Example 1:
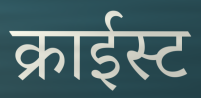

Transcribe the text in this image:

क्राईस्ट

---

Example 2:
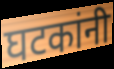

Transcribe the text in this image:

घटकांनी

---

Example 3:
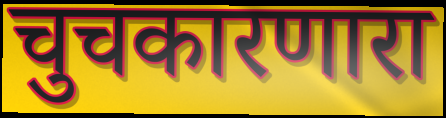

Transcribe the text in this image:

चुचकारणारा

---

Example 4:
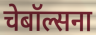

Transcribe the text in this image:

चेबॉल्सना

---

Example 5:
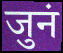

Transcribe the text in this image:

जुनं